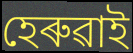
হেৰুৱাই